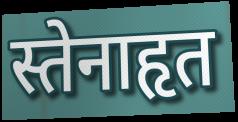
स्तेनाहृत